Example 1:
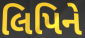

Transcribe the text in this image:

લિપિને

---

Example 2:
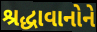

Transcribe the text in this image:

શ્રદ્ધાવાનોને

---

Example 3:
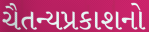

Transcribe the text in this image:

ચૈતન્યપ્રકાશનો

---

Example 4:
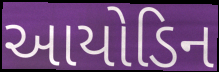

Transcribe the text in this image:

આયોડિન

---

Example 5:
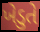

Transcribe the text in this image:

ખેડુતે